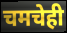
चमचेही